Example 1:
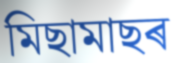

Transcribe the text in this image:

মিছামাছৰ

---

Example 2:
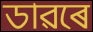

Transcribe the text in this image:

ডাৱৰে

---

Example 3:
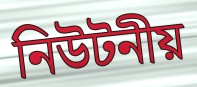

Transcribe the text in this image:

নিউটনীয়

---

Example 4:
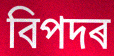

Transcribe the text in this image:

বিপদৰ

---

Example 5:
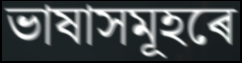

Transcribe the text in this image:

ভাষাসমূহৰে